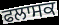
ਫਲਾਸਕ